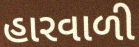
હારવાળી